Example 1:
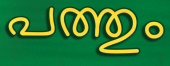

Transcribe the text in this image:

പത്തും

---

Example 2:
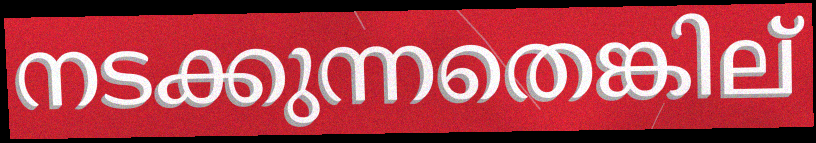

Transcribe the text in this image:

നടക്കുന്നതെങ്കില്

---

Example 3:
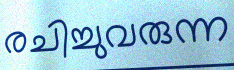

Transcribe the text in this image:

രചിച്ചുവരുന്ന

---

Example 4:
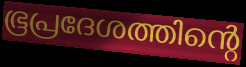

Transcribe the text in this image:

ഭൂപ്രദേശത്തിന്റെ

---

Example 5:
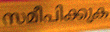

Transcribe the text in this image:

സമീപിക്കുക